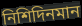
নিশিদিনমান